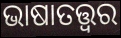
ଭାଷାତତ୍ତ୍ଵର